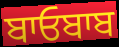
ਬਾਓਬਾਬ